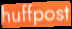
huffpost